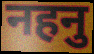
नहनु